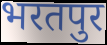
भरतपुर